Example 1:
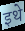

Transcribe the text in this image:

इथे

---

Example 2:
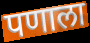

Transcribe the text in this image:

पणाला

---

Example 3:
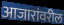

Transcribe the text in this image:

आजारांवरील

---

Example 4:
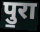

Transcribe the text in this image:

पु॒रा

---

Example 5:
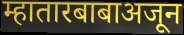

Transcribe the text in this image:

म्हातारबाबाअजून